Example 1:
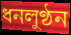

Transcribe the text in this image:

ধনলুণ্ঠন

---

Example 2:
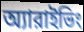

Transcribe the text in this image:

অ্যারাইভিং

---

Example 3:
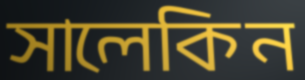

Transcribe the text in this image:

সালেকিন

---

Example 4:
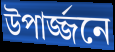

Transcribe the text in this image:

উপার্জ্জনে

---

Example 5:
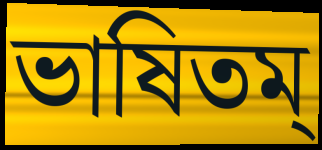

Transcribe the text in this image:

ভাষিতম্